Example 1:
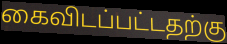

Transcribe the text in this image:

கைவிடப்பட்டதற்கு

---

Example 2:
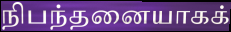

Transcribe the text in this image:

நிபந்தனையாகக்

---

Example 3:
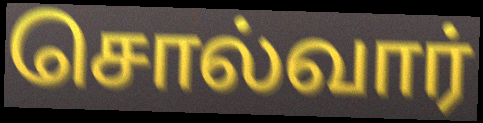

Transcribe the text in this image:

சொல்வார்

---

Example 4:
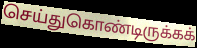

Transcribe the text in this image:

செய்துகொண்டிருக்கக்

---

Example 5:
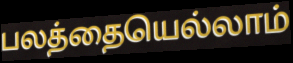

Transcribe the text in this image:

பலத்தையெல்லாம்